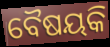
ବୈଷୟକି